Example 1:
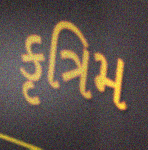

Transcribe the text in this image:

કૃત્રિમ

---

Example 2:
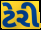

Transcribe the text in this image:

ટેરી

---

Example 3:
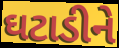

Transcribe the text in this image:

ઘટાડીને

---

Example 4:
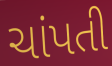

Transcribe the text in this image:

ચાંપતી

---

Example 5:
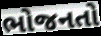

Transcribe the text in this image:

ભોજનતો